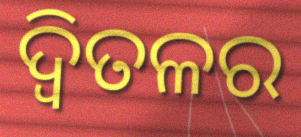
ଦ୍ୱିତଳର